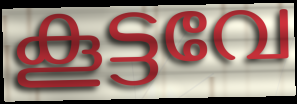
കൂട്ടവേ